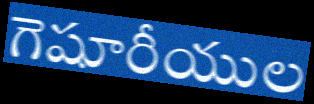
గెషూరీయుల